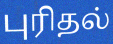
புரிதல்